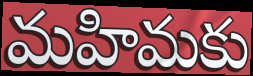
మహిమకు